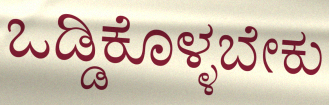
ಒಡ್ಡಿಕೊಳ್ಳಬೇಕು